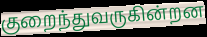
குறைந்துவருகின்றன